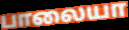
பாலையா